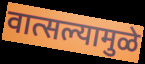
वात्सल्यामुळे